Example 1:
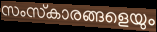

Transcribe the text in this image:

സംസ്‌കാരങ്ങളെയും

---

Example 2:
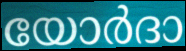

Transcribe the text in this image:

യോർദാ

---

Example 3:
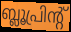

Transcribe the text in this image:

ബ്ലൂപ്രിന്റ്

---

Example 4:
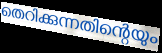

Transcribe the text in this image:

തെറിക്കുന്നതിന്റെയും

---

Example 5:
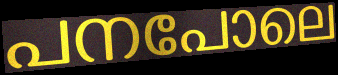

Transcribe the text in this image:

പനപോലെ